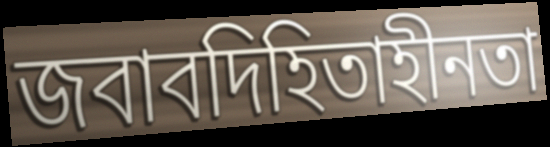
জবাবদিহিতাহীনতা